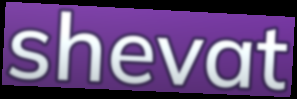
shevat